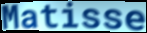
Matisse